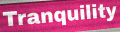
Tranquility